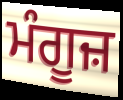
ਮੰਗੂਜ਼